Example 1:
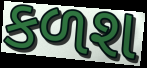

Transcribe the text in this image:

કળશ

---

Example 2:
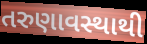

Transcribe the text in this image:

તરુણાવસ્થાથી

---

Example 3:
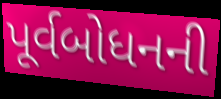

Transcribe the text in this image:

પૂર્વબોધનની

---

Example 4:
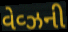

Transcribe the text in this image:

વેવ્ઝની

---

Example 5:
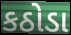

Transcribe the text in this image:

કઠોડા